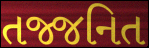
તજ્જનિત